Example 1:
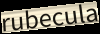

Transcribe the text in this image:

rubecula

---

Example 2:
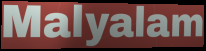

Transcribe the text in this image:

Malyalam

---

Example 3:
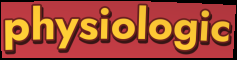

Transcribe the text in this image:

physiologic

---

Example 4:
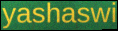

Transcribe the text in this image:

yashaswi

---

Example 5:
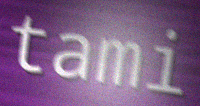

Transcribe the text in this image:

tami